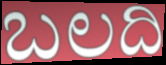
ಬಲದಿ